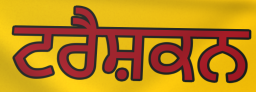
ਟਰੈਸ਼ਕਨ